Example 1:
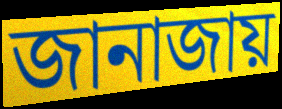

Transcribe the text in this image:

জানাজায়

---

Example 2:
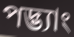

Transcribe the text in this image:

পদ্ভ্যাং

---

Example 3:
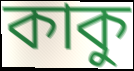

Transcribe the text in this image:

কাকু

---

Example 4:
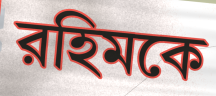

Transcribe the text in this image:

রহিমকে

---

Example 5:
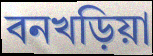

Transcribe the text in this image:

বনখড়িয়া